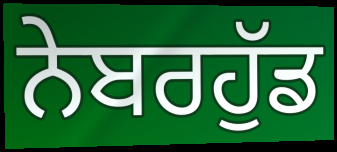
ਨੇਬਰਹੁੱਡ